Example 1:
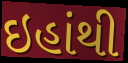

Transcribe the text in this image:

ઇહાંથી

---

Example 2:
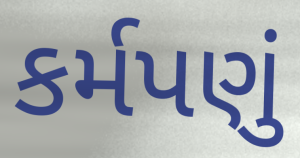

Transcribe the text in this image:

કર્મપણું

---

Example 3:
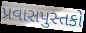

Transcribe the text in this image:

પ્રવાસપુસ્તકો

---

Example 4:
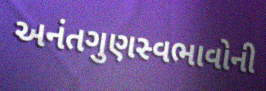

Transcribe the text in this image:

અનંતગુણસ્વભાવોની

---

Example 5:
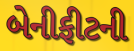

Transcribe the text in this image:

બેનીફીટની